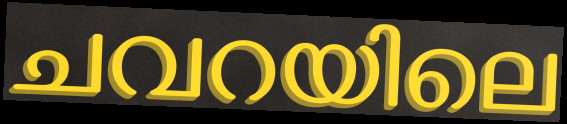
ചവറയിലെ